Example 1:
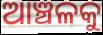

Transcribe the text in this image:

ଆଞ୍ଚଳକୁ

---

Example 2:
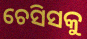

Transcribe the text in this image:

ଚେସିସକୁ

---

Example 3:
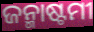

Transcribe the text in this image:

ଜନ୍ମାଷ୍ଟମୀ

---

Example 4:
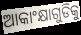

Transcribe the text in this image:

ଆକାଂକ୍ଷାଗୁଡିକୁ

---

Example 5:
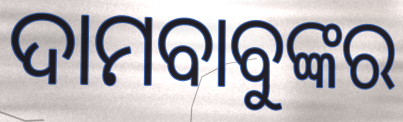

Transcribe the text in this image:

ଦାମବାବୁଙ୍କର